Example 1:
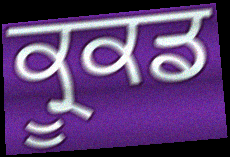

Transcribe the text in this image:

ਕ੍ਰੂਕਡ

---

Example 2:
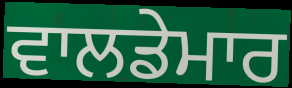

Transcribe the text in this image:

ਵਾਲਡੇਮਾਰ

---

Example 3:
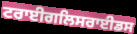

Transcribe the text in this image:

ਟਰਾਈਗਲਿਸਰਾਈਡਸ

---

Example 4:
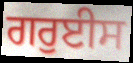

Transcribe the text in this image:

ਗਰੁਈਸ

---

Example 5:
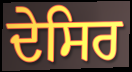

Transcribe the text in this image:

ਦੇਸਿਰ